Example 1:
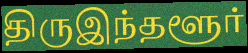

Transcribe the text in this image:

திருஇந்தளூர்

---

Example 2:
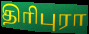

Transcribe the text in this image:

திரிபுரா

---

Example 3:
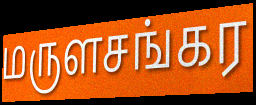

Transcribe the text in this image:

மருளசங்கர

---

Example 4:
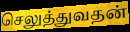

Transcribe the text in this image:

செலுத்துவதன்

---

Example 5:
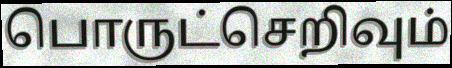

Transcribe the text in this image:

பொருட்செறிவும்